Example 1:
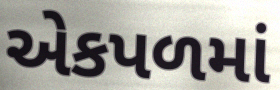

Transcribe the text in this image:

એકપળમાં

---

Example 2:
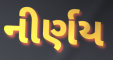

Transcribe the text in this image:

નીર્ણય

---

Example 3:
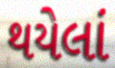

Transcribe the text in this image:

થયેલાં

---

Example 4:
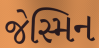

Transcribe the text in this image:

જેસ્મિન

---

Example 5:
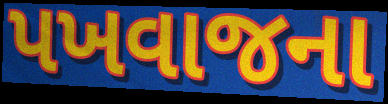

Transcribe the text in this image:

પખવાજના